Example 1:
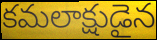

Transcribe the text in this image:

కమలాక్షుడైన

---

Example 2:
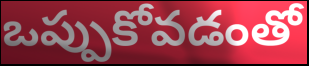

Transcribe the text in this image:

ఒప్పుకోవడంతో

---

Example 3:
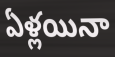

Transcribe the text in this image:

ఏళ్లయినా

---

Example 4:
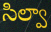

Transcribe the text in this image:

సిల్వా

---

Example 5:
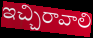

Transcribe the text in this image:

ఇచ్చిరావాలి